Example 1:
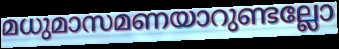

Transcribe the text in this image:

മധുമാസമണയാറുണ്ടല്ലോ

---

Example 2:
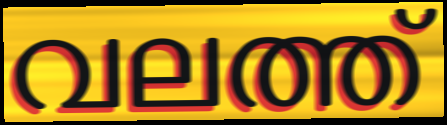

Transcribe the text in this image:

വലത്ത്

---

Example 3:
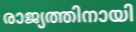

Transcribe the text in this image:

രാജ്യത്തിനായി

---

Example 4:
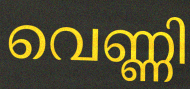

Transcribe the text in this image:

വെണ്ണി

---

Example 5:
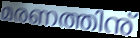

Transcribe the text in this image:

മരണത്തിനു്